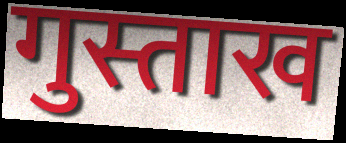
गुस्ताख